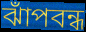
ঝাঁপবন্ধ